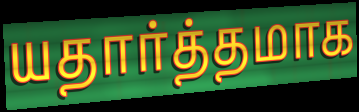
யதார்த்தமாக